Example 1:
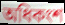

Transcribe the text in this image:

অধিকংশ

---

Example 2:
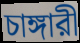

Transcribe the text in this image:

চাঙ্গারী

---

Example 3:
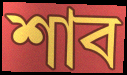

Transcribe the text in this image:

শাব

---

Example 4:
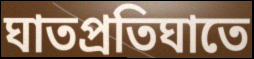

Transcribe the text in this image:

ঘাতপ্রতিঘাতে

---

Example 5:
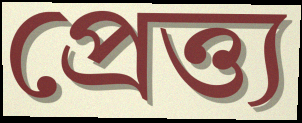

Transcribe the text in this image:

প্রেত্ত্য